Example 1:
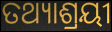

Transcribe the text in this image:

ତଥ୍ୟାଶ୍ରୟୀ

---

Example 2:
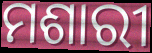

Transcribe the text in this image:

ମଶାରୀ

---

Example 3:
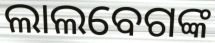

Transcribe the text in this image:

ଲାଲବେଗଙ୍କ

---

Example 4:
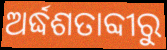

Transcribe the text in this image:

ଅର୍ଦ୍ଧଶତାବ୍ଦୀରୁ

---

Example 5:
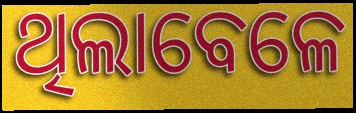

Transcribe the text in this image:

ଥିଲାବେଳେ